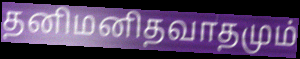
தனிமனிதவாதமும்